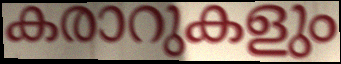
കരാറുകളും